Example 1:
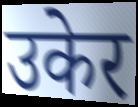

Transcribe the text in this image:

उकेर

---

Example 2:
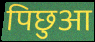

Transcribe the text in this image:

पिछुआ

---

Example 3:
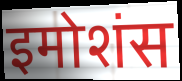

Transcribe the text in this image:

इमोशंस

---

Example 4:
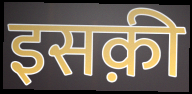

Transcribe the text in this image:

इसक़ी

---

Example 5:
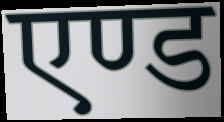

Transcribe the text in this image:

एण्ड